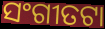
ସଂଗୀତଟା